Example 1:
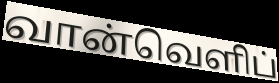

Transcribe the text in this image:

வான்வெளிப்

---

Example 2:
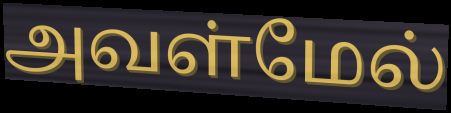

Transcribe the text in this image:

அவள்மேல்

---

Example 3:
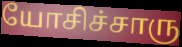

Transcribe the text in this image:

யோசிச்சாரு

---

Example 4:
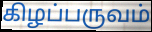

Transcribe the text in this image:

கிழப்பருவம்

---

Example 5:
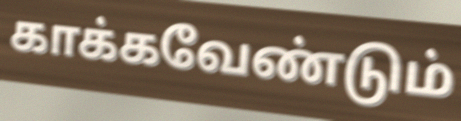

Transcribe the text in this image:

காக்கவேண்டும்